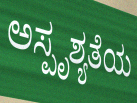
ಅಸ್ಪೃಶ್ಯತೆಯ